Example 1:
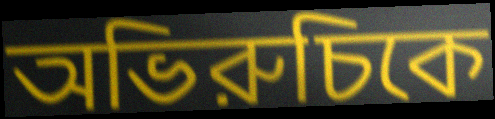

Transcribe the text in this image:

অভিরুচিকে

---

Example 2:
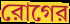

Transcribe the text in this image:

রোগের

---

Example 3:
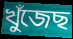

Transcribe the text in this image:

খুঁজেছ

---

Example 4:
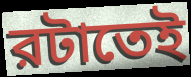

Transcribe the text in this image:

রটাতেই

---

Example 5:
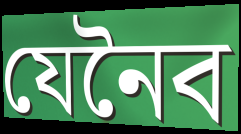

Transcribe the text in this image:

যেনৈব